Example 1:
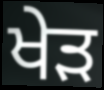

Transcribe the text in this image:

ਖੇੜ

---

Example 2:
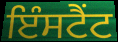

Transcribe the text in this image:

ਇੰਸਟੈਂਟ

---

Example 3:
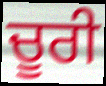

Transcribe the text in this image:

ਚੂਰੀ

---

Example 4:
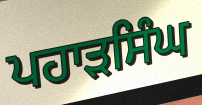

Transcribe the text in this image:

ਪਹਾੜਸਿੰਘ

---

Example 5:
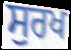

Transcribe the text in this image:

ਸੁਰਖ